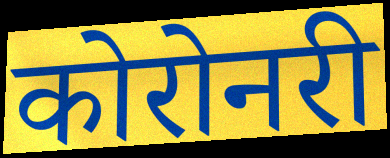
कोरोनरी